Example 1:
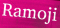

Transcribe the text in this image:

Ramoji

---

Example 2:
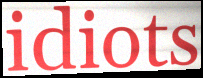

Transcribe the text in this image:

idiots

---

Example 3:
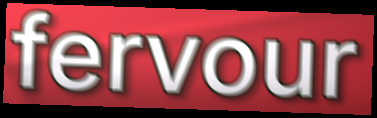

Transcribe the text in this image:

fervour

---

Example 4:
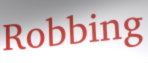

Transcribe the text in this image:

Robbing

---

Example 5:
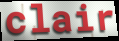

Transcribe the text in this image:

clair